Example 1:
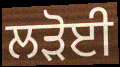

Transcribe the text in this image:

ਲੜੋਈ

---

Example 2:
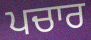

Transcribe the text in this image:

ਪਚਾਰ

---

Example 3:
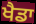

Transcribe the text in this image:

ਖੈਡਾ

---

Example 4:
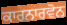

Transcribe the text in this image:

ਕਾਰਨਾਰਵੋਨ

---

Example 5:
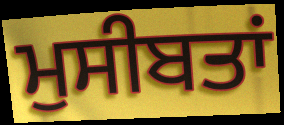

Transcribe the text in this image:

ਮੁਸੀਬਤਾਂ